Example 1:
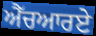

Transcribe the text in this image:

ਐੱਚਆਰਏ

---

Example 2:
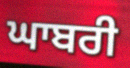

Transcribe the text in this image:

ਘਾਬਰੀ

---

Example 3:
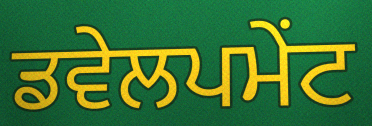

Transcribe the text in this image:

ਡਵੇਲਪਮੇਂਟ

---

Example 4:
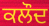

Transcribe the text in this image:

ਕਲੌਦ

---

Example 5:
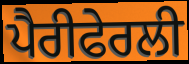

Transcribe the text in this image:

ਪੈਰੀਫੇਰਲੀ